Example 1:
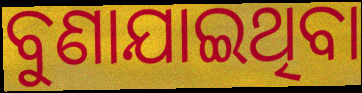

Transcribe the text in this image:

ବୁଣାଯାଇଥିବା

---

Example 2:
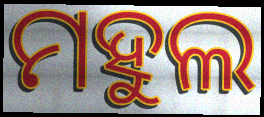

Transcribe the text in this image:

ମହୁଲ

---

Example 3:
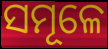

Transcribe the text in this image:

ସମୂଳେ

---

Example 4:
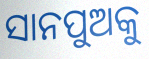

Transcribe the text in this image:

ସାନପୁଅକୁ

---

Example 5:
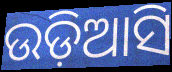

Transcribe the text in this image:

ଉଡ଼ିଆସି